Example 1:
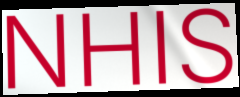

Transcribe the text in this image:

NHIS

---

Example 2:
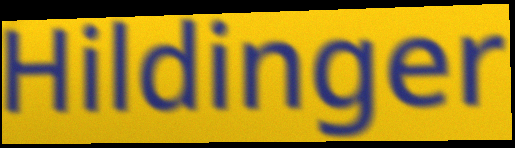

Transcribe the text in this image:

Hildinger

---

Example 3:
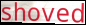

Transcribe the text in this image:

shoved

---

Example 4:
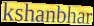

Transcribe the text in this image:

kshanbhar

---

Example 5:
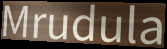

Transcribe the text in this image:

Mrudula